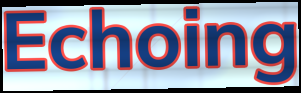
Echoing